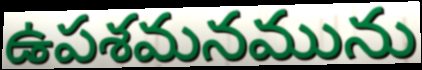
ఉపశమనమును